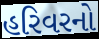
હરિવરનો